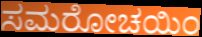
ಸಮರೋಚಯಿಂ